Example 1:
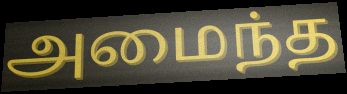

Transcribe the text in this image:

அமைந்த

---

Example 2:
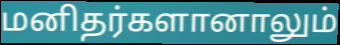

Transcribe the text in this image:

மனிதர்களானாலும்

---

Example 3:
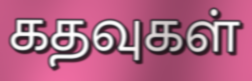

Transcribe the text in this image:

கதவுகள்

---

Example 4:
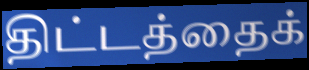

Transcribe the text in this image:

திட்டத்தைக்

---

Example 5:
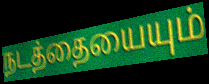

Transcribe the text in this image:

நடத்தையையும்